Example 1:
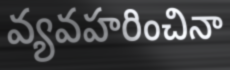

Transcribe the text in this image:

వ్యవహరించినా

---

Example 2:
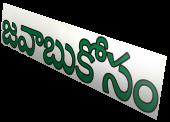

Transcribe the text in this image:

జవాబుకోసం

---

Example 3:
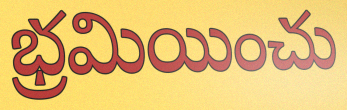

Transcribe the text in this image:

భ్రమియించు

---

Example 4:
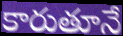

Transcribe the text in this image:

కారుతూనే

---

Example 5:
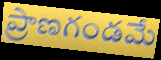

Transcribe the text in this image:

ప్రాణగండమే